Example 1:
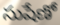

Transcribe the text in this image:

సుషేణో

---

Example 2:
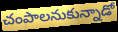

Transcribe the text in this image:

చంపాలనుకున్నాడో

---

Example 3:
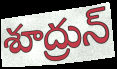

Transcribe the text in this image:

శూద్రున్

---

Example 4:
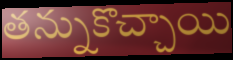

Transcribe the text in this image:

తన్నుకొచ్చాయి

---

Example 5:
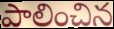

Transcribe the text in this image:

పాలించిన